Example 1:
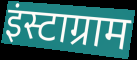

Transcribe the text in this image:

इंस्टाग्राम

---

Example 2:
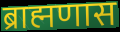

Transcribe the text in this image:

ब्राह्मणास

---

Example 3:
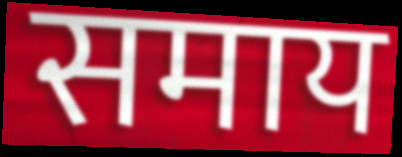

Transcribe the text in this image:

समाय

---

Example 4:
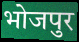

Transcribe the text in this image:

भोजपुर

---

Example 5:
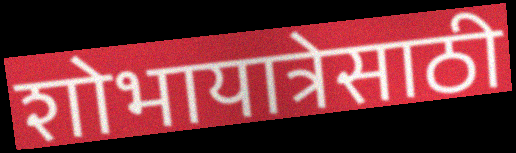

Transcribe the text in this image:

शोभायात्रेसाठी